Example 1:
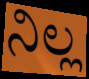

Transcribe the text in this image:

ನಿಲ್ಲ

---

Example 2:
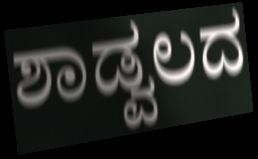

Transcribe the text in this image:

ಶಾಡ್ವಲದ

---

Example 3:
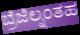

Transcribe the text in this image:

ಬ್ರೆಜಿಲ್ನಂತಹ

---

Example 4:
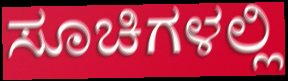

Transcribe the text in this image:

ಸೂಚಿಗಳಲ್ಲಿ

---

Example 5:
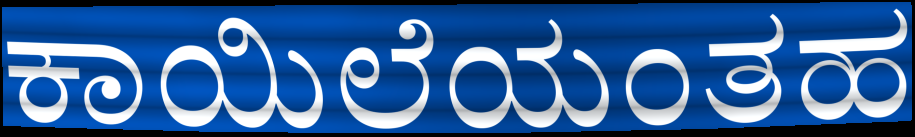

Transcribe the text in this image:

ಕಾಯಿಲೆಯಂತಹ